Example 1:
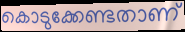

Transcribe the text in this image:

കൊടുക്കേണ്ടതാണ്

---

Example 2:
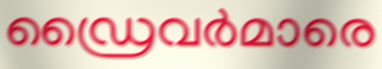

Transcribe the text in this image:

ഡ്രൈവർമാരെ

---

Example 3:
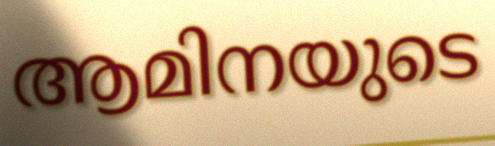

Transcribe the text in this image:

ആമിനയുടെ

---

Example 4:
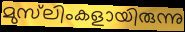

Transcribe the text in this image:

മുസ്‌ലിംകളായിരുന്നു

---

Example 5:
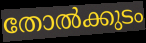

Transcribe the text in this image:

തോൽക്കുടം